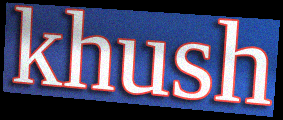
khush